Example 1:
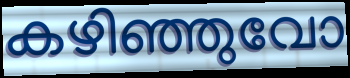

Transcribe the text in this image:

കഴിഞ്ഞുവോ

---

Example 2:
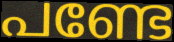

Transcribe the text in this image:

പണ്ടേ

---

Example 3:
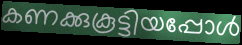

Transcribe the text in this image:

കണക്കുകൂട്ടിയപ്പോൾ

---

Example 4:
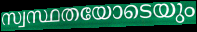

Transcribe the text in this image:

സ്വസ്ഥതയോടെയും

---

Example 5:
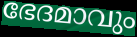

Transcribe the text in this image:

ഭേദമാവും